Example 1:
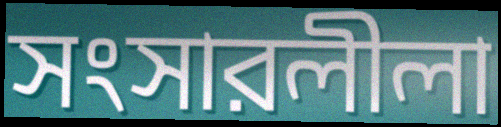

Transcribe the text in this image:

সংসারলীলা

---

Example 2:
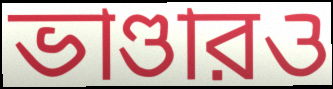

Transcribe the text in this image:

ভাণ্ডারও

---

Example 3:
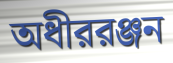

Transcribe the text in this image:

অধীররঞ্জন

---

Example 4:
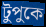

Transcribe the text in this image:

টুপুকে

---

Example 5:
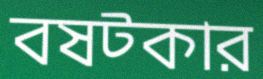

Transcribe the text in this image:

বষট্কার